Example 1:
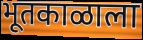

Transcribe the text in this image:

भूतकाळाला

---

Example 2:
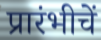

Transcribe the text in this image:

प्रारंभीचें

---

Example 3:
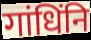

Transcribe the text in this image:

गांधिंनि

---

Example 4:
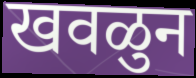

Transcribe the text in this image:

खवळुन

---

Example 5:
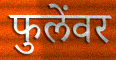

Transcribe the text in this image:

फुलेंवर